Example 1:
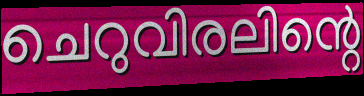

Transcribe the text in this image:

ചെറുവിരലിന്റെ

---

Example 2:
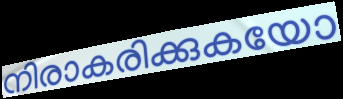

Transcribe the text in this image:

നിരാകരിക്കുകയോ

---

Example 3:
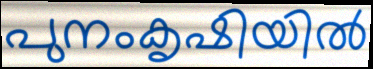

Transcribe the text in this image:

പുനംകൃഷിയിൽ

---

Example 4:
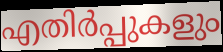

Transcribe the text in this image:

എതിർപ്പുകളും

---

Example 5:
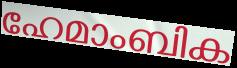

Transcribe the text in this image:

ഹേമാംബിക